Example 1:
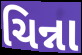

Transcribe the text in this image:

ચિન્ના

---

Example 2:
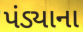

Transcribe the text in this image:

પંડ્યાના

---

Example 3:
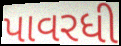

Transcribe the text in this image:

પાવરધી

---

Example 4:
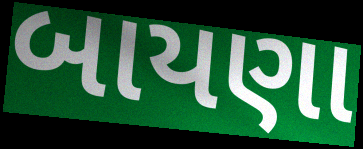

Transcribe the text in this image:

બાયણા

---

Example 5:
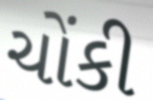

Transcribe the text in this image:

ચોંકી